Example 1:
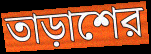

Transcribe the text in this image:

তাড়াশের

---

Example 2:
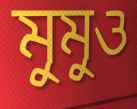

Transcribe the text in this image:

মুমুও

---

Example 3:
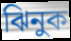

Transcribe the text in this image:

ঝিনুক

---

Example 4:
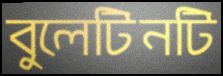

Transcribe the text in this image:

বুলেটিনটি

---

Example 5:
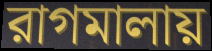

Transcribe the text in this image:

রাগমালায়